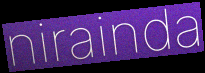
nirainda